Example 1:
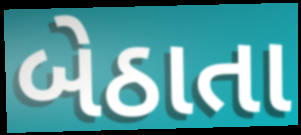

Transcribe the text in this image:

બેઠાતા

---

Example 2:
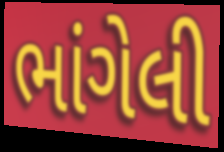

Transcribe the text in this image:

ભાંગેલી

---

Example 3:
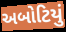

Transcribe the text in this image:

અબોટિયું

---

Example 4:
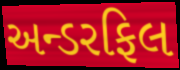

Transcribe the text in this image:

અન્ડરફિલ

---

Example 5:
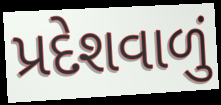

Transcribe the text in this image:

પ્રદેશવાળું